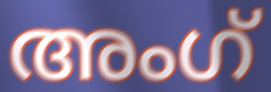
അംഗ്